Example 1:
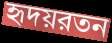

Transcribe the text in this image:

হৃদয়রতন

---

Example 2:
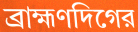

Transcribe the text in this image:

ব্রাহ্মণদিগের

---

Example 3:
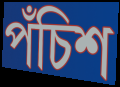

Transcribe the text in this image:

পঁচিশ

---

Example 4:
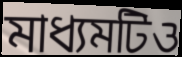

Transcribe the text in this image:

মাধ্যমটিও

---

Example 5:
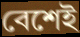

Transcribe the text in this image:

বেশেই